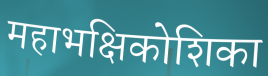
महाभक्षिकोशिका